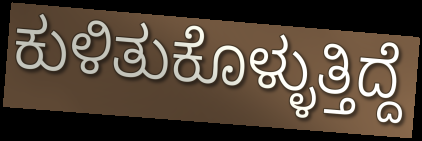
ಕುಳಿತುಕೊಳ್ಳುತ್ತಿದ್ದೆ